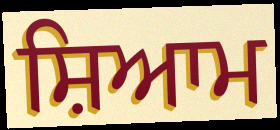
ਸ਼ਿਆਮ